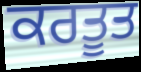
ਕਰਤੂਤ